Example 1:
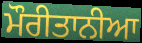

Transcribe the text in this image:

ਮੌਰੀਤਾਨੀਆ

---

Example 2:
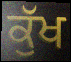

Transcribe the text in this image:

ਕੁੱਖ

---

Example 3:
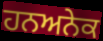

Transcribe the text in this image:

ਹਨਅਨੇਕ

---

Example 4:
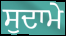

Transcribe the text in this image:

ਸੁਦਾਮੇ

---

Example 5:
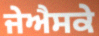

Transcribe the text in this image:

ਜੇਐਸਕੇ